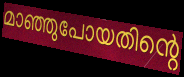
മാഞ്ഞുപോയതിന്റെ